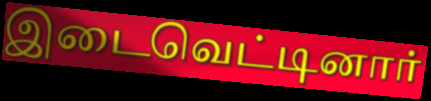
இடைவெட்டினார்